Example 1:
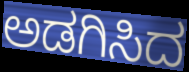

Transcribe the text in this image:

ಅಡಗಿಸಿದ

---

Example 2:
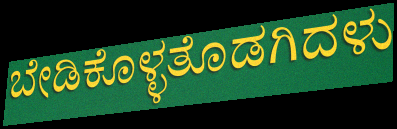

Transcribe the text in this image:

ಬೇಡಿಕೊಳ್ಳತೊಡಗಿದಳು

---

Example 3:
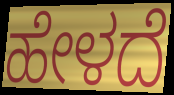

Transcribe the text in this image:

ಹೇಳದೆ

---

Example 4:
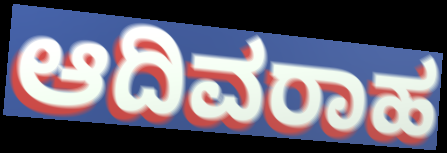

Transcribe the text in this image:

ಆದಿವರಾಹ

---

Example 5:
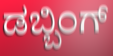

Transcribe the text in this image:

ಡಬ್ಬಿಂಗ್